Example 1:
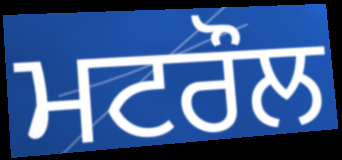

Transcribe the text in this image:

ਮਟਰੌਲ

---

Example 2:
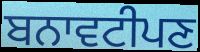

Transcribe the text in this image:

ਬਨਾਵਟੀਪਣ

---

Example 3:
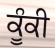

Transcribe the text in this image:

ਕੂੰਕੀ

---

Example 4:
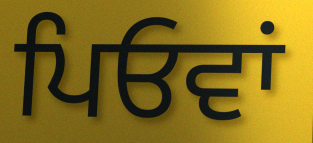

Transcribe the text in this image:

ਪਿਓਵਾਂ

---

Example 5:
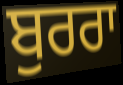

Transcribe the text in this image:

ਬੁਰਰਾ